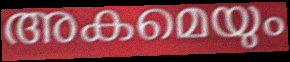
അകമെയും